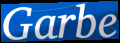
Garbe